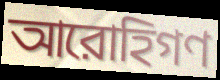
আরোহিগণ